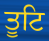
ਤੂਟਿ